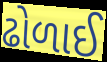
ઢોળાઈ